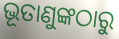
ଭୂତାଣୁଙ୍କଠାରୁ